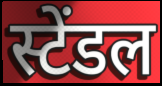
स्टेंडल